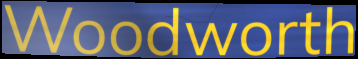
Woodworth